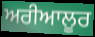
ਅਰੀਆਲੂਰ